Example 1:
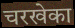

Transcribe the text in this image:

चरखेका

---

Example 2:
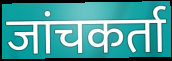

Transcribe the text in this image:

जांचकर्ता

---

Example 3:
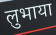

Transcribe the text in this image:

लुभाया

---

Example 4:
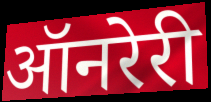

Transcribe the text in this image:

ऑनरेरी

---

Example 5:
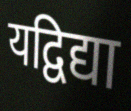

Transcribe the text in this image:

यद्विद्या